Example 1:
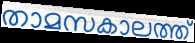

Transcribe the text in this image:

താമസകാലത്ത്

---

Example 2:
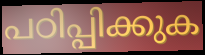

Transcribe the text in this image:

പഠിപ്പിക്കുക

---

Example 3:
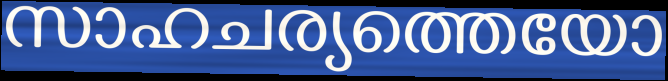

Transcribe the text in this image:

സാഹചര്യത്തെയോ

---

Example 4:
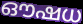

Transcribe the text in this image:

ഔഷധ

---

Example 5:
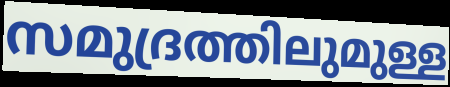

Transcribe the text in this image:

സമുദ്രത്തിലുമുള്ള